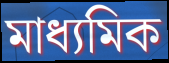
মাধ্যমিক